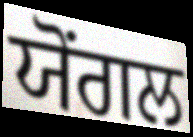
ਯੋਂਗਲ